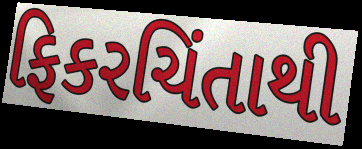
ફિકરચિંતાથી